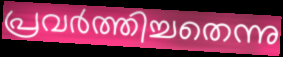
പ്രവർത്തിച്ചതെന്നു